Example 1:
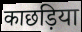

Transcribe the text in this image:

काछड़िया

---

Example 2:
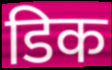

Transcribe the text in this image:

डिक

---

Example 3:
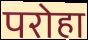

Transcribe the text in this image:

परोहा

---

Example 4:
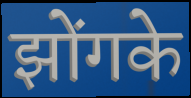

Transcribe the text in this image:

झोंगके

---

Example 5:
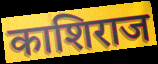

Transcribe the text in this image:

काशिराज